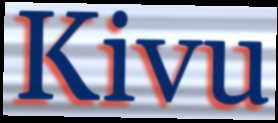
Kivu